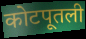
कोटपूतली